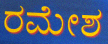
ರಮೇಶ